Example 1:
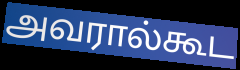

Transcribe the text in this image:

அவரால்கூட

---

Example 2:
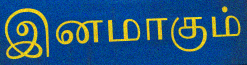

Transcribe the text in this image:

இனமாகும்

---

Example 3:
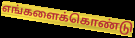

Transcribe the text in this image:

எங்களைக்கொண்டு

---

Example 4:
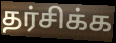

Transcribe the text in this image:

தர்சிக்க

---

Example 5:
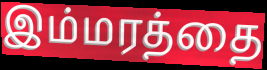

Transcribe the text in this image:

இம்மரத்தை